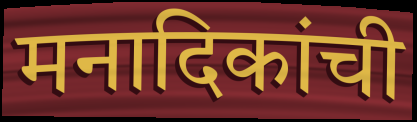
मनादिकांची